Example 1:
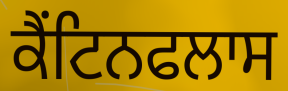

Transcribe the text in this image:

ਕੈਂਟਿਨਫਲਾਸ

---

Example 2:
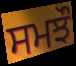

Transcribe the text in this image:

ਸਮਝੌ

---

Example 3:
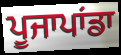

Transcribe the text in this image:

ਪੂਜਾਪਾਂਡਾ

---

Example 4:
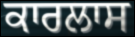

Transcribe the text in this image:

ਕਾਰਲਾਸ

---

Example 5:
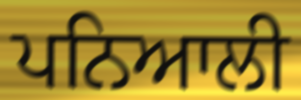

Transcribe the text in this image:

ਪਨਿਆਲੀ